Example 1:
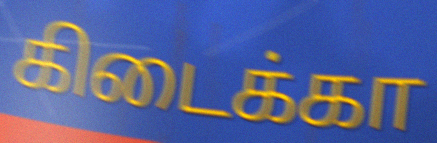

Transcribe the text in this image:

கிடைக்கா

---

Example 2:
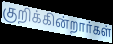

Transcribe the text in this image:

குறிக்கின்றார்கள்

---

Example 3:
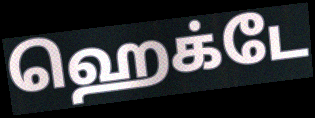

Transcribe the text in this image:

ஹெக்டே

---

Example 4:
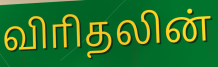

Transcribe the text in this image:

விரிதலின்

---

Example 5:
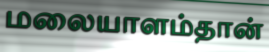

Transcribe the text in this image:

மலையாளம்தான்